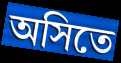
অসিতে